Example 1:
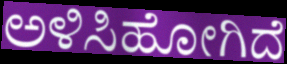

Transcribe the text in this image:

ಅಳಿಸಿಹೋಗಿದೆ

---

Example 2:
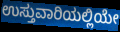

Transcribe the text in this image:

ಉಸ್ತುವಾರಿಯಲ್ಲಿಯೇ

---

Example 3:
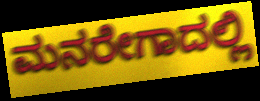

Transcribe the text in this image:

ಮನರೇಗಾದಲ್ಲಿ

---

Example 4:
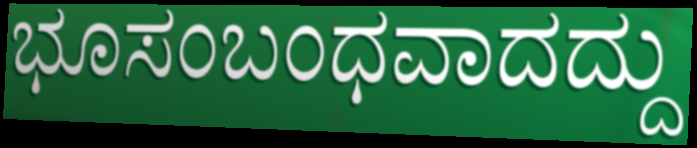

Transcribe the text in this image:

ಭೂಸಂಬಂಧವಾದದ್ದು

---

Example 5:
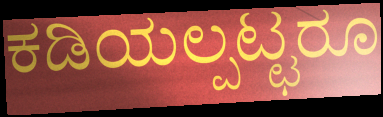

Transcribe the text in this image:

ಕಡಿಯಲ್ಪಟ್ಟರೂ